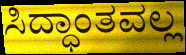
ಸಿದ್ಧಾಂತವಲ್ಲ